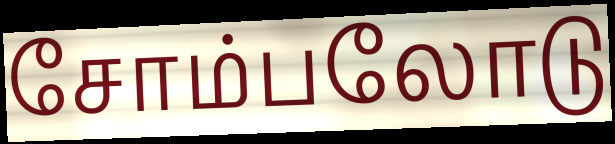
சோம்பலோடு